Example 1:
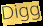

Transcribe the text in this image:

Digg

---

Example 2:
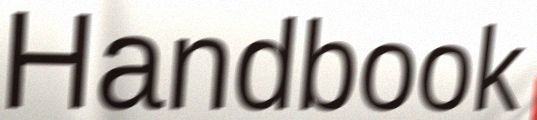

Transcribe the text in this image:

Handbook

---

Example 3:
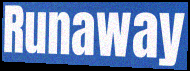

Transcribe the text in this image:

Runaway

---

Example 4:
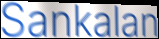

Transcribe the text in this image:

Sankalan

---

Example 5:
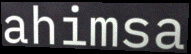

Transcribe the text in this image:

ahimsa